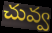
చువ్వ